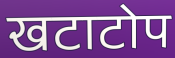
खटाटोप